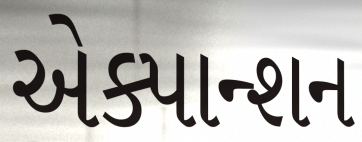
એક્પાન્શન